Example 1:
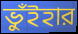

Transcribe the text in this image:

ভুঁইহার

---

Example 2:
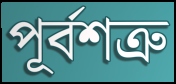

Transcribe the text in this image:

পূর্বশত্রু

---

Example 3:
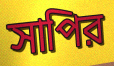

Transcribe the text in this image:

সাপির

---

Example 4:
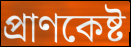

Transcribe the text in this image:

প্রাণকেষ্ট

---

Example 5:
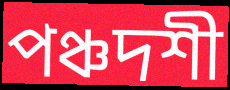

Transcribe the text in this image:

পঞ্চদশী